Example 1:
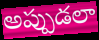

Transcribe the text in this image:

అప్పుడలా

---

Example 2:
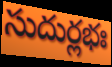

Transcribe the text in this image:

సుదుర్లభః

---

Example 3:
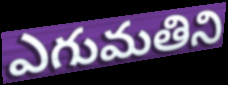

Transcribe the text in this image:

ఎగుమతిని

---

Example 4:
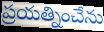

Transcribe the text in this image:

ప్రయత్నించేను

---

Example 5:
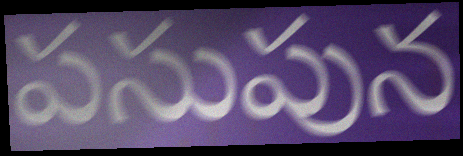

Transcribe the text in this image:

పసుపున